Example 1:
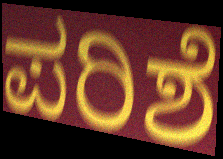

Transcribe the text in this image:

ಪರಿಶೆ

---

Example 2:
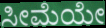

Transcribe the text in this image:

ಸೀಮೆಯೇ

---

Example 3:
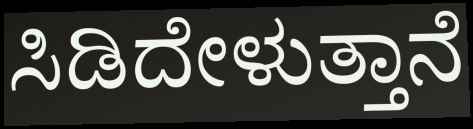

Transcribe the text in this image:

ಸಿಡಿದೇಳುತ್ತಾನೆ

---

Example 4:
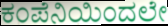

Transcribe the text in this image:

ಕಂಪೆನಿಯಿಂದಲೇ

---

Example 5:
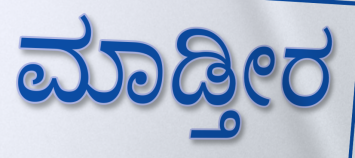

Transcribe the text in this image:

ಮಾಡ್ತೀರ